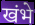
खंभे